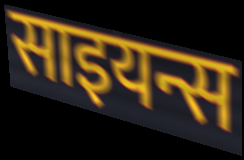
साइयन्स